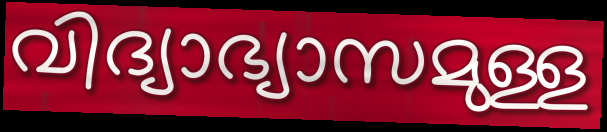
വിദ്യാഭ്യാസമുള്ള